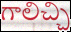
గాలిచ్చి